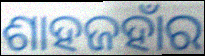
ଶାହଜହାଁର